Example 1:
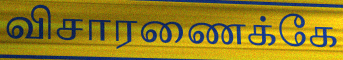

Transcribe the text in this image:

விசாரணைக்கே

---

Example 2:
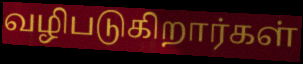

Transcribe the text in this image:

வழிபடுகிறார்கள்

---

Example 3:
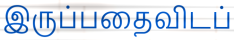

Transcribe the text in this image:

இருப்பதைவிடப்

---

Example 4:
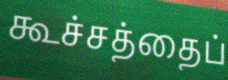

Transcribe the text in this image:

கூச்சத்தைப்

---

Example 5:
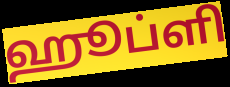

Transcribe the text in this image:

ஹூப்ளி